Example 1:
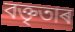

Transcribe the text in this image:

বক্তৃতাৰ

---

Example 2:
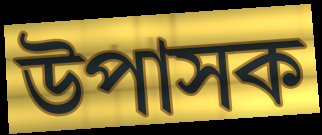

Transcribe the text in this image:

উপাসক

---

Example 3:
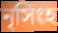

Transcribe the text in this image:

নৃসিংহ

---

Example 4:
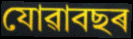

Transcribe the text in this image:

যোৱাবছৰ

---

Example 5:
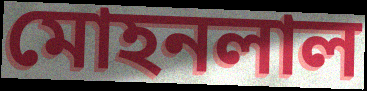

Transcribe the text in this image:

মোহনলাল